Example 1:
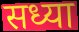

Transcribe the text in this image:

सध्या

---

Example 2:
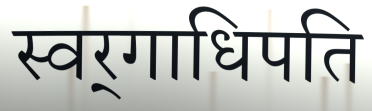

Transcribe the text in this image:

स्वर्गाधिपति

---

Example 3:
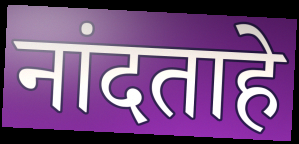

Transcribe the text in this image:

नांदताहे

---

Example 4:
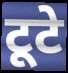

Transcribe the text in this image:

टूटे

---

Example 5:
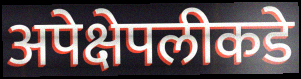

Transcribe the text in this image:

अपेक्षेपलीकडे